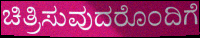
ಚಿತ್ರಿಸುವುದರೊಂದಿಗೆ